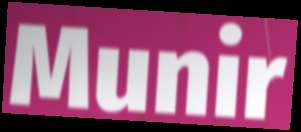
Munir